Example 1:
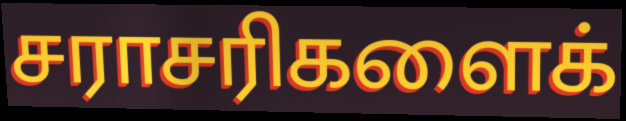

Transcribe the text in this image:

சராசரிகளைக்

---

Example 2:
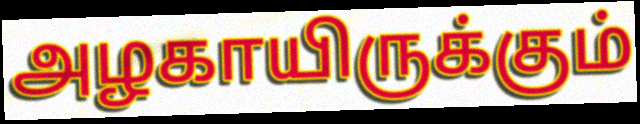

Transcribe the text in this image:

அழகாயிருக்கும்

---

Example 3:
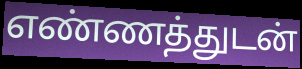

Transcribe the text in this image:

எண்ணத்துடன்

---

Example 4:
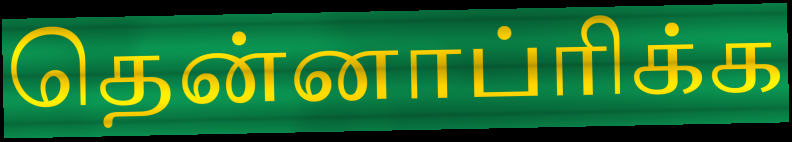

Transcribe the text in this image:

தென்னாப்ரிக்க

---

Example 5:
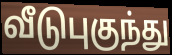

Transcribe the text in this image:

வீடுபுகுந்து